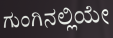
ಗುಂಗಿನಲ್ಲಿಯೇ